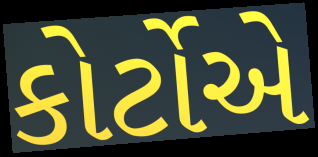
કોર્ટોએ